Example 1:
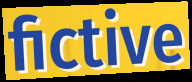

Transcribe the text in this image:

fictive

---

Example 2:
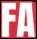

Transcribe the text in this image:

FA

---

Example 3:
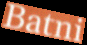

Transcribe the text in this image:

Batni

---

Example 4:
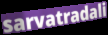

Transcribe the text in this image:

sarvatradali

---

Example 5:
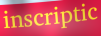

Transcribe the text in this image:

inscriptic